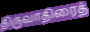
திருவாதிரைத்